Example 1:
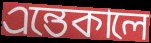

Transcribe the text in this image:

এন্তেকালে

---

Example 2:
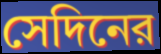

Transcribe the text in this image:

সেদিনের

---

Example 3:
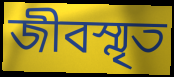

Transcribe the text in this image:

জীবস্মৃত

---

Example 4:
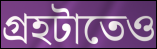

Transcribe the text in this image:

গ্রহটাতেও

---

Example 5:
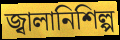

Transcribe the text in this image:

জ্বালানিশিল্প